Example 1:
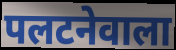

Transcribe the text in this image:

पलटनेवाला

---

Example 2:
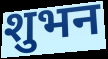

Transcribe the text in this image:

शुभन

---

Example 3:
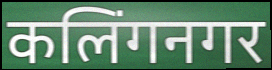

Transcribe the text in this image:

कलिंगनगर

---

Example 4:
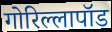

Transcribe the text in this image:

गोरिल्लापॉड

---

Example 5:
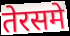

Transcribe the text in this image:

तेरसमे